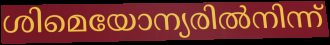
ശിമെയോന്യരിൽനിന്ന്